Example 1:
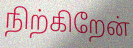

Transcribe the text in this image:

நிற்கிறேன்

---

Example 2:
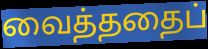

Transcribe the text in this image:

வைத்ததைப்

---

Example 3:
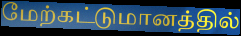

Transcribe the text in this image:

மேற்கட்டுமானத்தில்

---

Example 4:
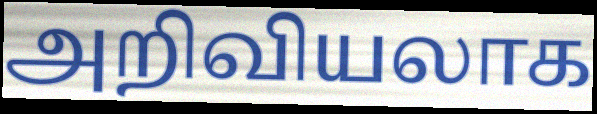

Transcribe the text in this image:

அறிவியலாக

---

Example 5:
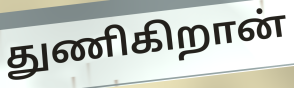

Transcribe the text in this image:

துணிகிறான்